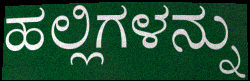
ಹಲ್ಲಿಗಳನ್ನು